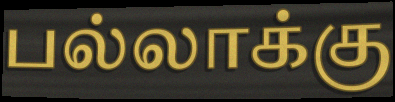
பல்லாக்கு